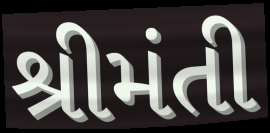
શ્રીમંતી